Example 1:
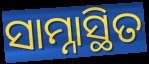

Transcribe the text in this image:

ସାମ୍ନାସ୍ଥିତ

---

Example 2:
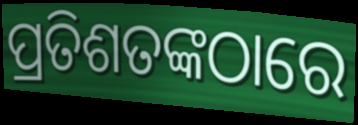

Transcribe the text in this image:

ପ୍ରତିଶତଙ୍କଠାରେ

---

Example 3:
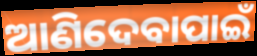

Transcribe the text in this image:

ଆଣିଦେବାପାଇଁ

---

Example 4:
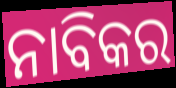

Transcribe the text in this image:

ନାବିକର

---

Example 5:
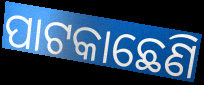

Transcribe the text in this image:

ପାଟକାଛେଣି